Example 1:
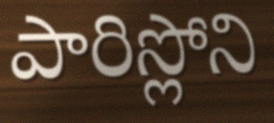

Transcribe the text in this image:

పారిస్లోని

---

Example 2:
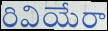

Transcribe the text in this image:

రివియేరా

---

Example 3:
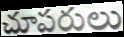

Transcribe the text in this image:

చూపరులు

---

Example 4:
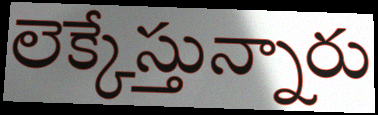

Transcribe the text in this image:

లెక్కేస్తున్నారు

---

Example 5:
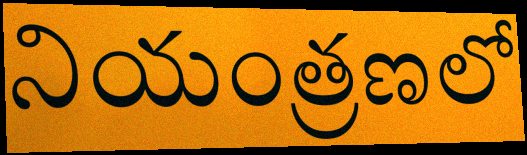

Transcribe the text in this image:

నియంత్రణలో